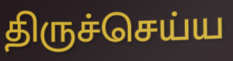
திருச்செய்ய